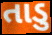
તાડુ